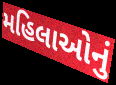
મહિલાઓનું